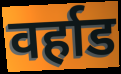
वर्हाड